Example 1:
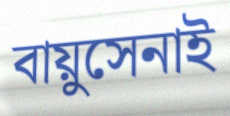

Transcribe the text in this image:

বায়ুসেনাই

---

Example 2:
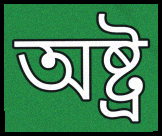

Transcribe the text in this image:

অষ্ট্ৰ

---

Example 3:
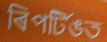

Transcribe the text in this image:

ৰিপৰ্টিঙত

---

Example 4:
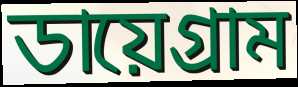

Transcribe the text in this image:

ডায়েগ্ৰাম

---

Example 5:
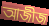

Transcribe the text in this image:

আজীজ